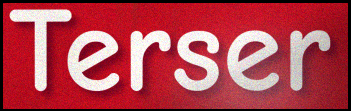
Terser